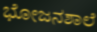
ಭೋಜನಶಾಲೆ